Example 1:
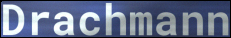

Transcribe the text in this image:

Drachmann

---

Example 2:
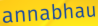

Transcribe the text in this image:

annabhau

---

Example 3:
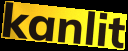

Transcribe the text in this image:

kanlit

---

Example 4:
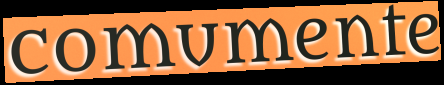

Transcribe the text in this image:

comumente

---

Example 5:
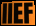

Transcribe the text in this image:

IIEF